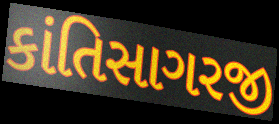
કાંતિસાગરજી